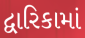
દ્વારિકામાં